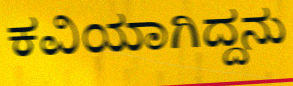
ಕವಿಯಾಗಿದ್ದನು